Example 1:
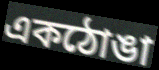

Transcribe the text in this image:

একঠোঙা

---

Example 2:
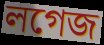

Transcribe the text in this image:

লগেজ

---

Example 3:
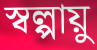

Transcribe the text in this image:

স্বল্পায়ু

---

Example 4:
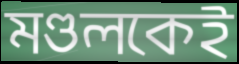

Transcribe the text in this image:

মণ্ডলকেই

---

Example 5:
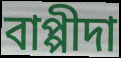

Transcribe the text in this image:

বাপ্পীদা